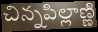
చిన్నపిల్లాణ్ణి